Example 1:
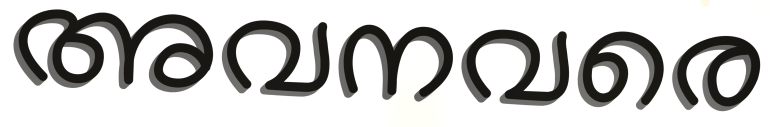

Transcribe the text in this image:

അവനവരെ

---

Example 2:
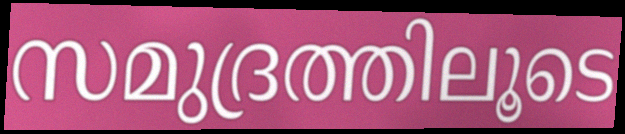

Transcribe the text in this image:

സമുദ്രത്തിലൂടെ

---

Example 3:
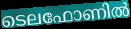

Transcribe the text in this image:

ടെലഫോണിൽ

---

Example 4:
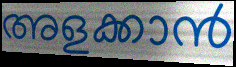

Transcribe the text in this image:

അളക്കാൻ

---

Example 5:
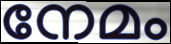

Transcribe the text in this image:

നേമം